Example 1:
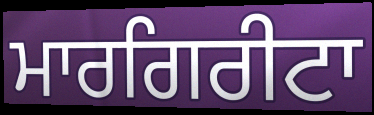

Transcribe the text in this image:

ਮਾਰਗਿਰੀਟਾ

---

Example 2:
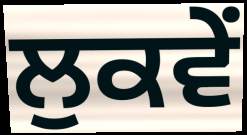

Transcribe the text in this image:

ਲੁਕਵੇਂ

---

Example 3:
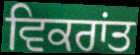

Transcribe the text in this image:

ਵਿਕਰਾਂਤ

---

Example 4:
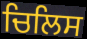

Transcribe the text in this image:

ਚਿਲਿਸ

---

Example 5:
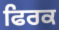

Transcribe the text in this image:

ਫਿਰਕ